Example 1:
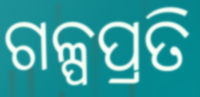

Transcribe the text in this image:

ଗଳ୍ପପ୍ରତି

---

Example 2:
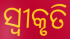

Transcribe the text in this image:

ସ୍ୱୀକୃତି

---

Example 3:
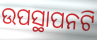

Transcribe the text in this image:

ଉପସ୍ଥାପନଟି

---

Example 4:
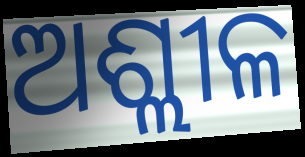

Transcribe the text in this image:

ଅଶ୍ଲୀଳ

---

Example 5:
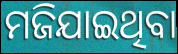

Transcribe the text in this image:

ମଜିଯାଇଥିବା